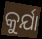
କୁର୍ଯା